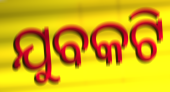
ଯୁବକଟି